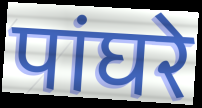
पांघरे